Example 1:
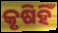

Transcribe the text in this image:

କୃଷିହିଁ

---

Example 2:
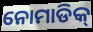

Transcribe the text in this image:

ନୋମାଡିକ୍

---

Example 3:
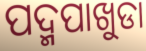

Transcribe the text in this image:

ପଦ୍ମପାଖୁଡା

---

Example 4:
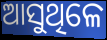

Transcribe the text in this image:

ଆସୁଥିଳେ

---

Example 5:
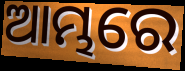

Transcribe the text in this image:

ଆମ୍ଭରେ